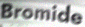
Bromide